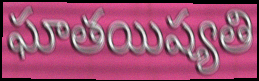
ఘాతయిష్యతి